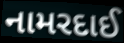
નામરદાઈ